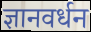
ज्ञानवर्धन